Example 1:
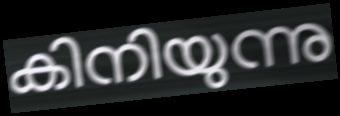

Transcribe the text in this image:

കിനിയുന്നു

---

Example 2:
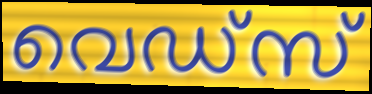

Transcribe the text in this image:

വെഡ്സ്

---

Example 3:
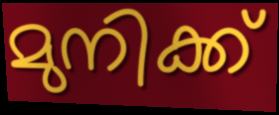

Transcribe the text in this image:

മുനിക്ക്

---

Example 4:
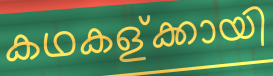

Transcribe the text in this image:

കഥകള്ക്കായി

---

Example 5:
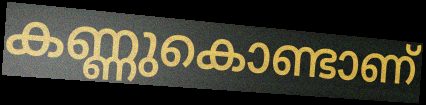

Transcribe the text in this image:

കണ്ണുകൊണ്ടാണ്